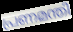
പ്രണമന്തി